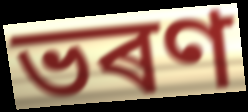
ভৰণ